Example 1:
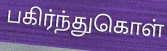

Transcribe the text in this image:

பகிர்ந்துகொள்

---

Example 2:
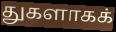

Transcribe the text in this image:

துகளாகக்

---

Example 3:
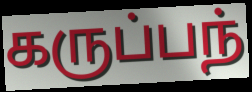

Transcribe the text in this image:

கருப்பந்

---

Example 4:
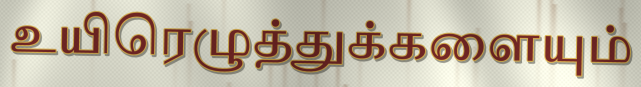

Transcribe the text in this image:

உயிரெழுத்துக்களையும்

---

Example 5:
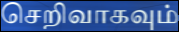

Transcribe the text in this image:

செறிவாகவும்